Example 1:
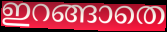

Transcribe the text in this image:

ഇറങ്ങാതെ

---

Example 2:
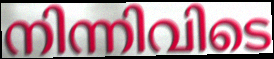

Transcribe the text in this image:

നിന്നിവിടെ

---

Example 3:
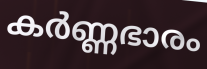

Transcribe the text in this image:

കർണ്ണഭാരം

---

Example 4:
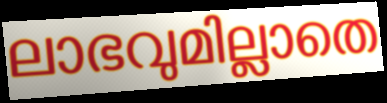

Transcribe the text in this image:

ലാഭവുമില്ലാതെ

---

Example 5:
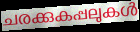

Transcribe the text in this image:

ചരക്കുകപ്പലുകൾ